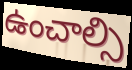
ఉంచాల్సి